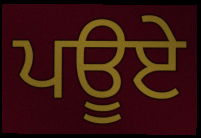
ਪਊਏ